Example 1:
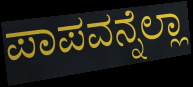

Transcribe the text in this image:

ಪಾಪವನ್ನೆಲ್ಲಾ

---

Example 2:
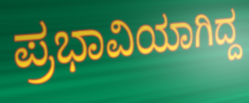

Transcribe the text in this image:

ಪ್ರಭಾವಿಯಾಗಿದ್ದ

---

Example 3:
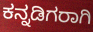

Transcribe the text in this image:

ಕನ್ನಡಿಗರಾಗಿ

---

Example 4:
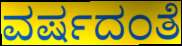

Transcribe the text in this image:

ವರ್ಷದಂತೆ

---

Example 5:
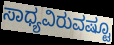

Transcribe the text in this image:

ಸಾಧ್ಯವಿರುವಷ್ಟೂ